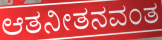
ಆತನೀತನವಂತ